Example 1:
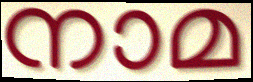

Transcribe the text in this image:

നാമ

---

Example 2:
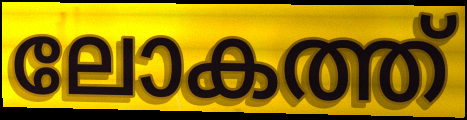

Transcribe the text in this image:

ലോകത്ത്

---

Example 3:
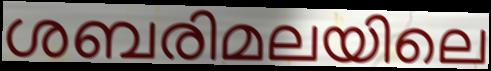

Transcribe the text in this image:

ശബരിമലയിലെ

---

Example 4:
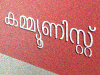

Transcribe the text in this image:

കമ്മ്യൂണിസ്റ്റ്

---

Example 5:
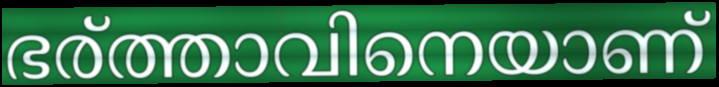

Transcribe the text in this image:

ഭര്ത്താവിനെയാണ്